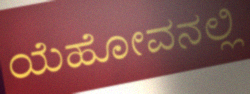
ಯೆಹೋವನಲ್ಲಿ